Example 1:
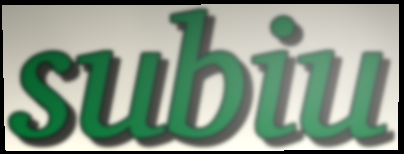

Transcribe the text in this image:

subiu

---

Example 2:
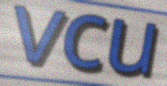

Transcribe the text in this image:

vcu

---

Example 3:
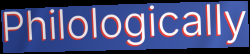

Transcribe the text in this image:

Philologically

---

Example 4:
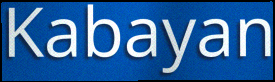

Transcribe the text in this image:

Kabayan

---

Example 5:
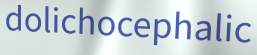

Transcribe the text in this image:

dolichocephalic